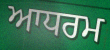
ਆਧਰਮ